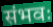
संभवः